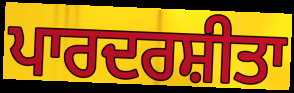
ਪਾਰਦਰਸ਼ੀਤਾ